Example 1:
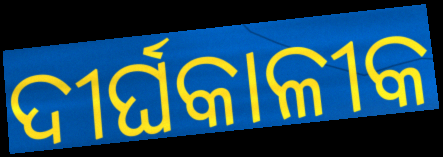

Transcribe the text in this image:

ଦୀର୍ଘକାଳୀକ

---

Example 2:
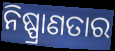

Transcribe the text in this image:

ନିଷ୍ପ୍ରାଣତାର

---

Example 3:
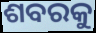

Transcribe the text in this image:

ଶବରକୁ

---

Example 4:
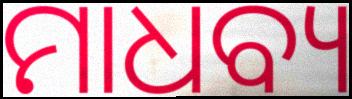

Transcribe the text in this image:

ମାଧବ୍ୟ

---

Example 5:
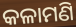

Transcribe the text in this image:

କଳାମଣି